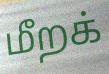
மீறக்